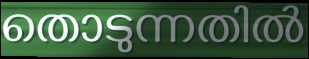
തൊടുന്നതിൽ